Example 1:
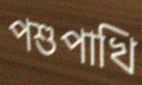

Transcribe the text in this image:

পশুপাখি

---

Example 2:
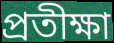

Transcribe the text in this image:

প্রতীক্ষা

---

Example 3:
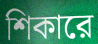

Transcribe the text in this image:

শিকারে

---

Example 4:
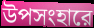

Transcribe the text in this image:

উপসংহারে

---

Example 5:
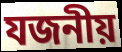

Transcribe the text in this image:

যজনীয়